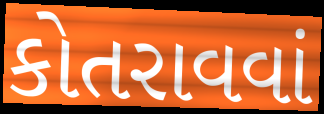
કોતરાવવાં